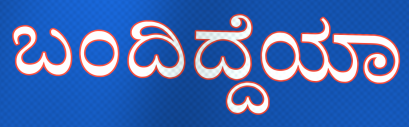
ಬಂದಿದ್ದೆಯಾ